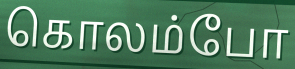
கொலம்போ